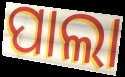
ପାଲା